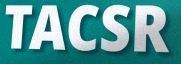
TACSR